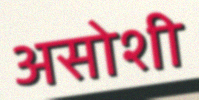
असोशी